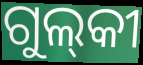
ଗୁଲ୍‌କୀ